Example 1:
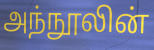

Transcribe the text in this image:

அந்நூலின்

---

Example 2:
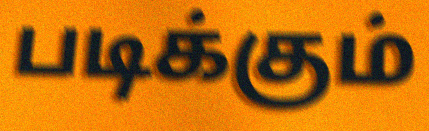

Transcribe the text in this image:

படிக்கும்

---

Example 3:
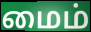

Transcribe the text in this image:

மைம்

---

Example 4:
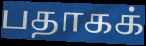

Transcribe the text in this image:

பதாகக்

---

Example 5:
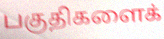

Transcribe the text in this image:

பகுதிகளைக்